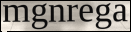
mgnrega